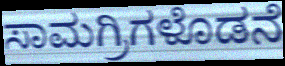
ಸಾಮಗ್ರಿಗಳೊಡನೆ